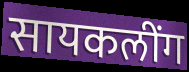
सायकलींग